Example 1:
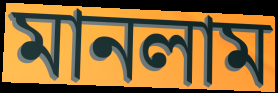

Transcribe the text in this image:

মানলাম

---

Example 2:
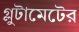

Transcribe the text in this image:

গ্লুটামেটের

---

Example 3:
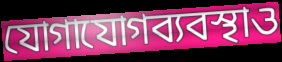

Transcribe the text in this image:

যোগাযোগব্যবস্থাও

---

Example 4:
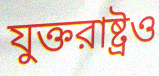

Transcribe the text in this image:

যুক্তরাষ্ট্রও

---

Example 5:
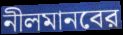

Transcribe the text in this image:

নীলমানবের